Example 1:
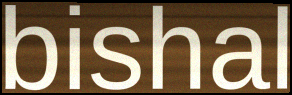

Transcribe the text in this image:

bishal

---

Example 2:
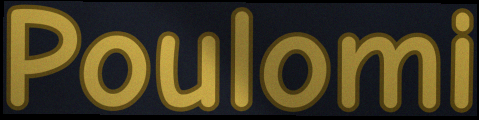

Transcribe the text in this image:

Poulomi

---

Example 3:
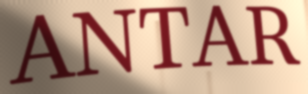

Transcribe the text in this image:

ANTAR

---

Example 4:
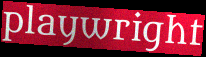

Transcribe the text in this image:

playwright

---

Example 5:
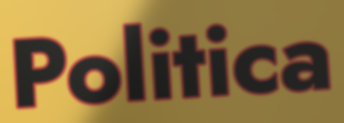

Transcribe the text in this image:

Politica